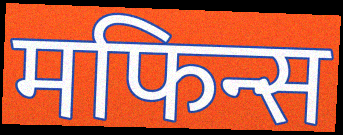
मफिन्स